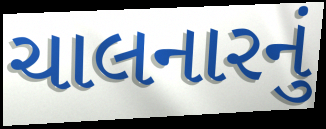
ચાલનારનું